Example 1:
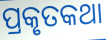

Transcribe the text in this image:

ପ୍ରକୃତକଥା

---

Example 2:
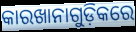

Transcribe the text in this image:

କାରଖାନାଗୁଡ଼ିକରେ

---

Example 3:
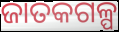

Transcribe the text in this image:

ଜାତକଗଳ୍ପ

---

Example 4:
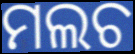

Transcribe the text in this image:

ମଲଚ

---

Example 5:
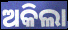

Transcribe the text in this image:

ଅକିଲା